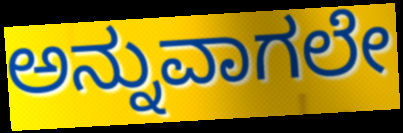
ಅನ್ನುವಾಗಲೇ